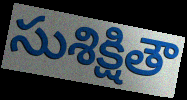
సుశిక్షితౌ